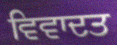
ਵਿਵਾਦਤ